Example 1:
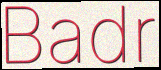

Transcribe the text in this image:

Badr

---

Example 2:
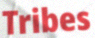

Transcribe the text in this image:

Tribes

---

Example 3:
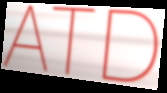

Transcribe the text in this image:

ATD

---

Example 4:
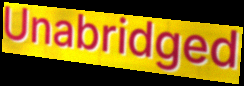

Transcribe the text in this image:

Unabridged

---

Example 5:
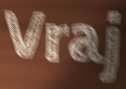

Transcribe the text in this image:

Vraj